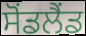
ਸੋਂਡਲੈਂਡ